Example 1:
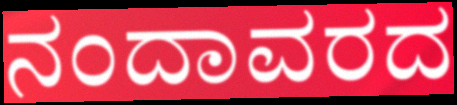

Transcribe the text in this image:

ನಂದಾವರದ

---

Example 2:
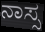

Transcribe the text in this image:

ನಾಸ್ಸ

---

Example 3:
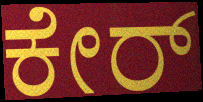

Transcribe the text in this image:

ಕೇರ್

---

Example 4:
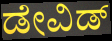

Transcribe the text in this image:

ಡೇವಿಡ್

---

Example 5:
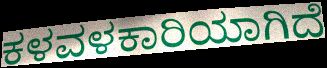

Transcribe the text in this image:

ಕಳವಳಕಾರಿಯಾಗಿದೆ